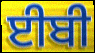
ਈਬੀ